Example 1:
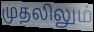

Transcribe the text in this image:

முதலிலும்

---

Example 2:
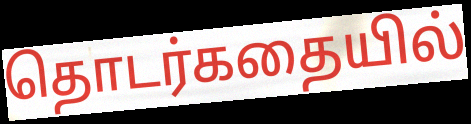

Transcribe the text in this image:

தொடர்கதையில்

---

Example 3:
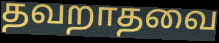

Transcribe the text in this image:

தவறாதவை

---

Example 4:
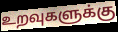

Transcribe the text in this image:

உறவுகளுக்கு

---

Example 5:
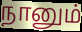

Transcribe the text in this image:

நானும்